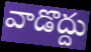
వాడొద్దు